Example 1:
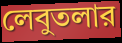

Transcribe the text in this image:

লেবুতলার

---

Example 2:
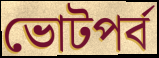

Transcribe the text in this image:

ভোটপর্ব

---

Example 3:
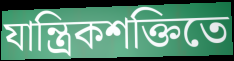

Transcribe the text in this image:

যান্ত্রিকশক্তিতে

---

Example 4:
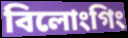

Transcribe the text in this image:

বিলোংগিং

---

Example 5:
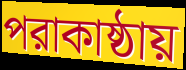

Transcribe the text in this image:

পরাকাষ্ঠায়